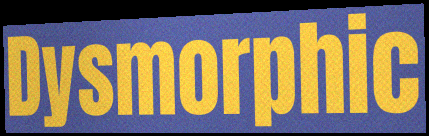
Dysmorphic